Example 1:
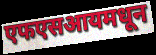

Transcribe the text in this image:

एफएसआयमधून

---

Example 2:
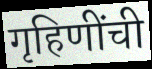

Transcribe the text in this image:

गृहिणींची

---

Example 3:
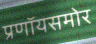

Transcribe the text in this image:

प्रणॉयसमोर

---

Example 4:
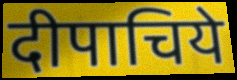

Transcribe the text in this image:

दीपाचिये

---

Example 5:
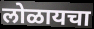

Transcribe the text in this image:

लोळायचा